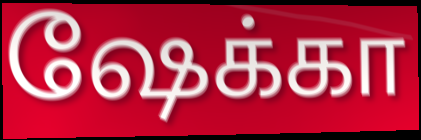
ஷேக்கா